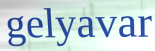
gelyavar